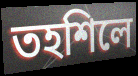
তহশিলে